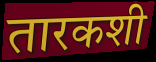
तारकशी